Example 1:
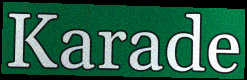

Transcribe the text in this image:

Karade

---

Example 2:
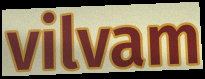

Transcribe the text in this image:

vilvam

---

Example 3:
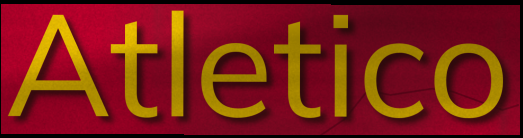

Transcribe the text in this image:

Atletico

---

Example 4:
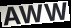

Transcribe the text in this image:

AWW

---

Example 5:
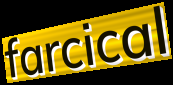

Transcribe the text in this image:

farcical